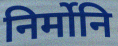
निर्मोनि